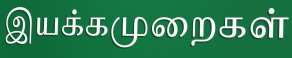
இயக்கமுறைகள்